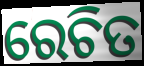
ରେଚିତ